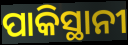
ପାକିସ୍ଥାନୀ